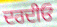
ਦਰਦੀਓ